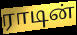
ராடின்